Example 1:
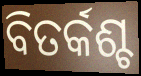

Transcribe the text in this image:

ବିତର୍କଶ୍ଚ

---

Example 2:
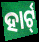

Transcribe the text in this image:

ହାର୍ଟ୍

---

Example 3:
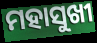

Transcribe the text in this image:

ମହାସୁଖୀ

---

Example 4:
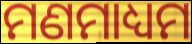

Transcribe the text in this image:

ମଣମାଧ୍ୟମ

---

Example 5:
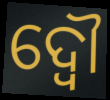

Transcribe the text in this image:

ଦ୍ଵୌ